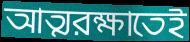
আত্মরক্ষাতেই